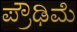
ಪ್ರೌಢಿಮೆ